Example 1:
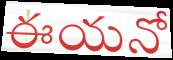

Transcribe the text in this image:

ఈయనో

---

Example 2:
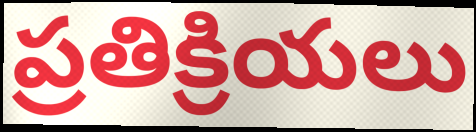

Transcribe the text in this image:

ప్రతిక్రియలు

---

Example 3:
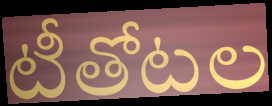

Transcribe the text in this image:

టీతోటల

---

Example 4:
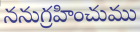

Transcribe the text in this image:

ననుగ్రహించుము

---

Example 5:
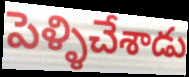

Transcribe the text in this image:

పెళ్ళిచేశాడు